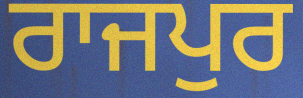
ਰਾਜਪੁਰ